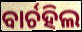
ବାର୍ଚହିଲ